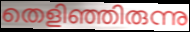
തെളിഞ്ഞിരുന്നു